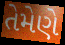
તેમેણે